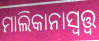
ମାଲିକାନାସ୍ୱତ୍ତ୍ୱ